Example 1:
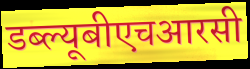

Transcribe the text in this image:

डब्ल्यूबीएचआरसी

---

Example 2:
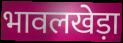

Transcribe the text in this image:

भावलखेड़ा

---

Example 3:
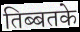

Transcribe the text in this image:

तिब्बतके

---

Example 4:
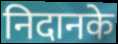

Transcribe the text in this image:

निदानके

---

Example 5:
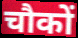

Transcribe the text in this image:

चौकों